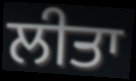
ਲੀਤਾ